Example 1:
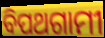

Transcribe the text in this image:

ବିପଥଗାମୀ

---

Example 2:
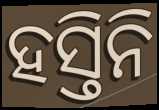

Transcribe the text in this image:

ହସ୍ତିନି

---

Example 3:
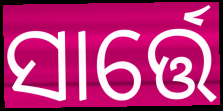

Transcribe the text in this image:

ସାର୍ତ୍ତେ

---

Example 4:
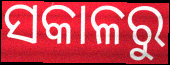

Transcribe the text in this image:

ସକାଳରୁ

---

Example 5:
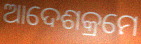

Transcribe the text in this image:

ଆଦେଶକ୍ରମେ